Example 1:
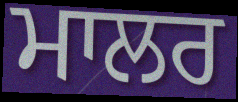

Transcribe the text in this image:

ਮਾਲਰ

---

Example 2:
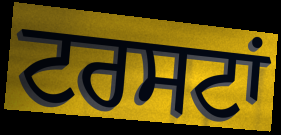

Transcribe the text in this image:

ਟਰਸਟਾਂ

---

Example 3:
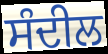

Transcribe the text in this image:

ਸੰਦੀਲ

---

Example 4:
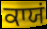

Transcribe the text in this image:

ਕਾਯਂ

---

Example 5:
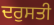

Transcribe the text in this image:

ਦਰੁਸਤੀ